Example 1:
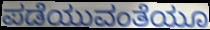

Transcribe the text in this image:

ಪಡೆಯುವಂತೆಯೂ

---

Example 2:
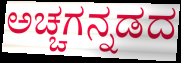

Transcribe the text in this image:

ಅಚ್ಚಗನ್ನಡದ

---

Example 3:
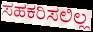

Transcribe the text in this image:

ಸಹಕರಿಸಲಿಲ್ಲ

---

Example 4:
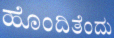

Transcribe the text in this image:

ಹೊಂದಿತೆಂದು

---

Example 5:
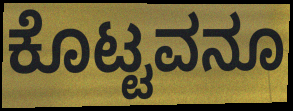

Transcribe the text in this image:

ಕೊಟ್ಟವನೂ